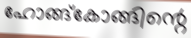
ഹോങ്ങ്കോങ്ങിന്റെ